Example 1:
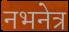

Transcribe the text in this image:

नभनेत्र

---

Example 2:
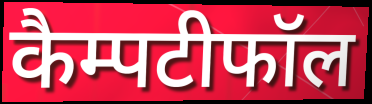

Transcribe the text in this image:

कैम्पटीफॉल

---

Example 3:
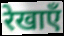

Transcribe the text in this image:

रेखाएँ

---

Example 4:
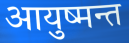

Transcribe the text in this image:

आयुष्मन्त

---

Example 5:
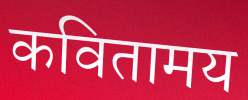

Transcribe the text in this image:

कवितामय